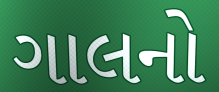
ગાલનો